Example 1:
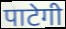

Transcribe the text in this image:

पाटेगी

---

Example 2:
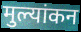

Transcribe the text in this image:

मुल्यांकन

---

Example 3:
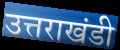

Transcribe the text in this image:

उत्तराखंडी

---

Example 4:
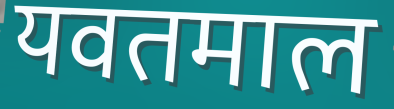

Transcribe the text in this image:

यवतमाल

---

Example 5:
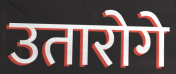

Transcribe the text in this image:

उतारोगे